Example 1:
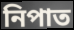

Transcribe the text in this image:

নিপাত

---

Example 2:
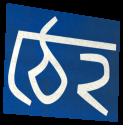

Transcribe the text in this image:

ঠেহ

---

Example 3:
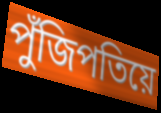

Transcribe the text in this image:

পুঁজিপতিয়ে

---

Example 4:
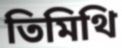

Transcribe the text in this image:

তিমিথি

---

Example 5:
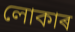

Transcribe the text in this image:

লোকাৰ